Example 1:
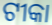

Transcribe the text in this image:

ଟୀକା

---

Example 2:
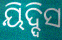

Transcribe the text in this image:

ୟିଦ୍ଦିସ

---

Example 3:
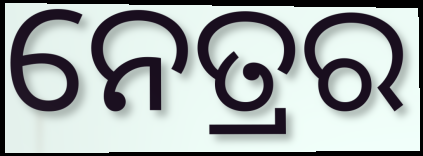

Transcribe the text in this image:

ନେତ୍ରର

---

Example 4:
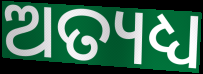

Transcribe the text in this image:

ଅତ୍ୟଧ୍ୟ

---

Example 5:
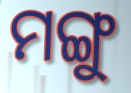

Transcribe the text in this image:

ମଙ୍ଗୁ